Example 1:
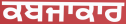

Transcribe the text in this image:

ਕਬਜਾਕਾਰ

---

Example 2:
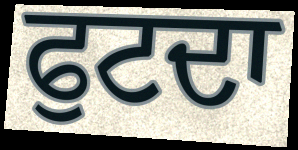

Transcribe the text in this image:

ਫੁਟਦਾ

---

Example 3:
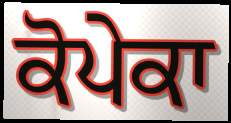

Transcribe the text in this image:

ਕੋਪੇਕਾ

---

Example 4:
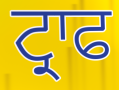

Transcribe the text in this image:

ਟ੍ਰਾਫ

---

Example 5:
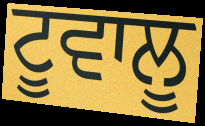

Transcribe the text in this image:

ਟੂਵਾਲੂ